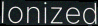
Ionized